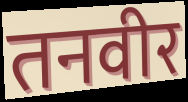
तनवीर